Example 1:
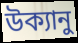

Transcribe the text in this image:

উক্যানু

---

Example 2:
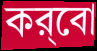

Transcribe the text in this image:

কর্‌বো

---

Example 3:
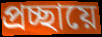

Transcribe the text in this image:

প্রচ্ছায়ে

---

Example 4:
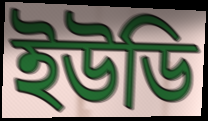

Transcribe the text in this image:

ইউডি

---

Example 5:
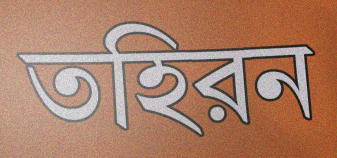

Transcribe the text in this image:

তহিরন